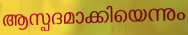
ആസ്പദമാക്കിയെന്നും